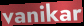
vanikar